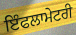
ਇੰਫਲਾਮੇਟਰੀ